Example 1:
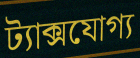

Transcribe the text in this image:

ট্যাক্সযোগ্য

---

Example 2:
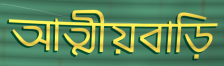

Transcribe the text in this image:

আত্মীয়বাড়ি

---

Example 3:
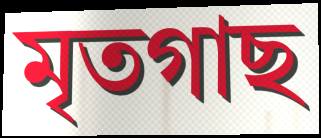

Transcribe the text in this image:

মৃতগাছ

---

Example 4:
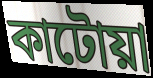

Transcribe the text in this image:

কাটোয়া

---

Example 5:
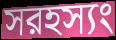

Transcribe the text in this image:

সরহস্যং